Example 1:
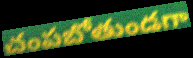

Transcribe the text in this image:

చంపబోతుండగా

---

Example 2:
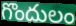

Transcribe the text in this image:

గొందులం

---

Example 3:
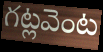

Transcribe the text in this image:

గట్లవెంట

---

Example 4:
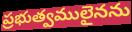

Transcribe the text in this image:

ప్రభుత్వములైనను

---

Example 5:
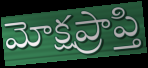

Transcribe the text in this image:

మోక్షప్రాప్తి